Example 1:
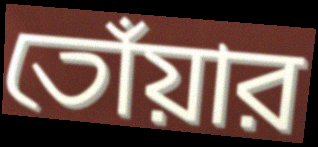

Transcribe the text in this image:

তোঁয়ার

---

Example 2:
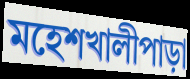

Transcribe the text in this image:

মহেশখালীপাড়া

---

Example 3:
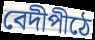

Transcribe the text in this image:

বেদীপীঠে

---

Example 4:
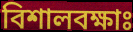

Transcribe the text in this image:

বিশালবক্ষাঃ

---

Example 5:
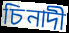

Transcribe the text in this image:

চিনাদী